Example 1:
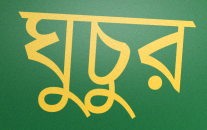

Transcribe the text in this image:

ঘুচুর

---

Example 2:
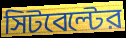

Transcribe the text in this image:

সিটবেল্টের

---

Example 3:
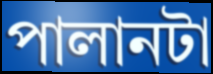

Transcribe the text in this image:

পালানটা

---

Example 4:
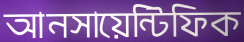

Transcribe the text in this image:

আনসায়েন্টিফিক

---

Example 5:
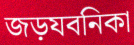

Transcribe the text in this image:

জড়যবনিকা